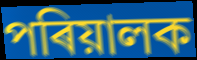
পৰিয়ালক